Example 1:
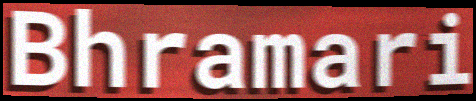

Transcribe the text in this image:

Bhramari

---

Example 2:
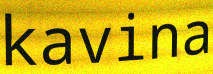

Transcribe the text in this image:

kavina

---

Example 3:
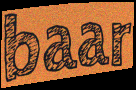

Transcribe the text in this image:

baar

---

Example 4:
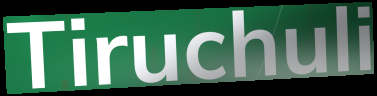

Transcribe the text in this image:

Tiruchuli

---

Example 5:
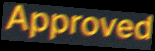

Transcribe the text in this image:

Approved